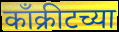
काँक्रीटच्या